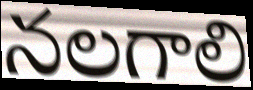
నలగాలి